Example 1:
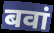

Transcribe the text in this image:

बवां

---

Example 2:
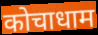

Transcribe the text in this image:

कोचाधाम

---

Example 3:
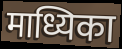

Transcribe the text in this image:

माध्यिका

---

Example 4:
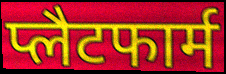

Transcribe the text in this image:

प्लैटफार्म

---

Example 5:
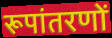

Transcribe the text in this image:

रूपांतरणों